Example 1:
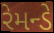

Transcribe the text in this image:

રેમન્ડે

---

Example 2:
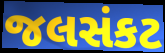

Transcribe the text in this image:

જલસંકટ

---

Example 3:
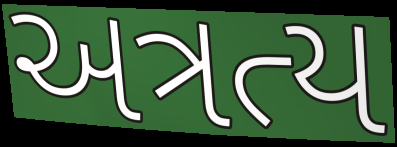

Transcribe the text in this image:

અત્રત્ય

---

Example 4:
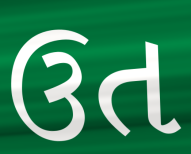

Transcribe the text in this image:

ઉત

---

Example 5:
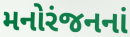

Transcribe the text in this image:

મનોરંજનનાં